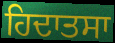
ਹਿਦਾਤਸਾ